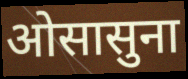
ओसासुना